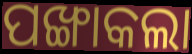
ପଙ୍ଖାକଲା